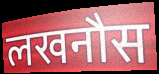
लखनौस